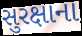
સુરક્ષાના